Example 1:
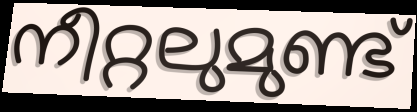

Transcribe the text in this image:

നീറ്റലുമുണ്ട്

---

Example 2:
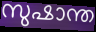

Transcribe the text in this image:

സുഷാന്ത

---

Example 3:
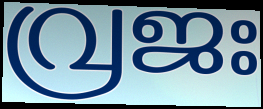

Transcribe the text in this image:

വ്രജഃ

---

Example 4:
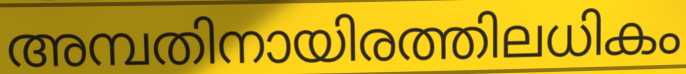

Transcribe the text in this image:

അമ്പതിനായിരത്തിലധികം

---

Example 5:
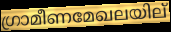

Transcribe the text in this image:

ഗ്രാമീണമേഖലയില്